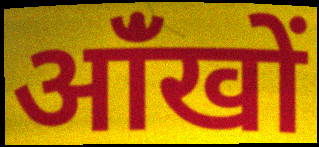
आंँखों